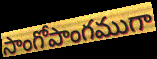
సాంగోపాంగముగా